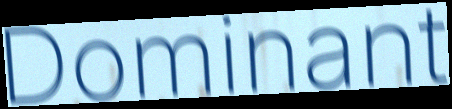
Dominant